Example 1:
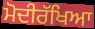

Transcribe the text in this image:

ਮੋਦੀਰੱਖਿਆ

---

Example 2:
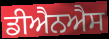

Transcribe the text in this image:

ਡੀਐਨਐਸ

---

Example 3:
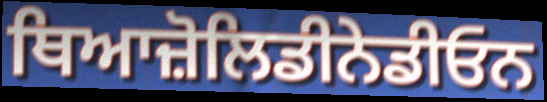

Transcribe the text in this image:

ਥਿਆਜ਼ੋਲਿਡੀਨੇਡੀਓਨ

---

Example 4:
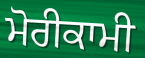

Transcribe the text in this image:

ਮੋਰੀਕਾਮੀ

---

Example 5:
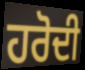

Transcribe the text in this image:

ਹਰੋਦੀ